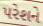
પરેશને